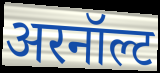
अरनॉल्ट